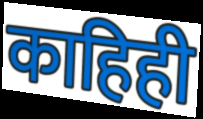
काहिही